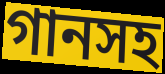
গানসহ